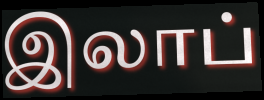
இலாப்